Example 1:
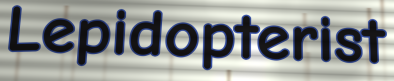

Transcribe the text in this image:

Lepidopterist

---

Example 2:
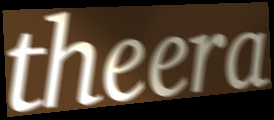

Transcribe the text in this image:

theera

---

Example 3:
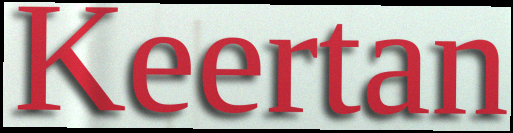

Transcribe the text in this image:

Keertan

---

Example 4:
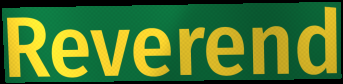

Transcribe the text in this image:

Reverend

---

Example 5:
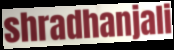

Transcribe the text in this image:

shradhanjali